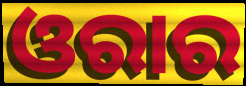
ଓରାର